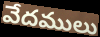
వేదములు